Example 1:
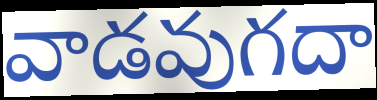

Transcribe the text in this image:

వాడవుగదా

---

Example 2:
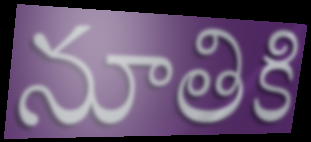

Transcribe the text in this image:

నూతికి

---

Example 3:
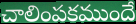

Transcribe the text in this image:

చాలింపకముందే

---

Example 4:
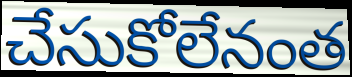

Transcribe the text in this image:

చేసుకోలేనంత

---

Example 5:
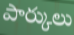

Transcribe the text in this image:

పార్కులు